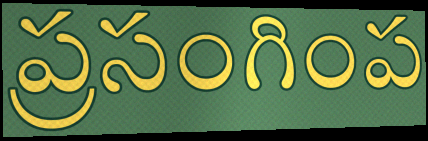
ప్రసంగింప